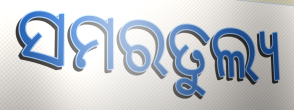
ସମରତୁଲ୍ୟ